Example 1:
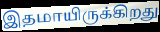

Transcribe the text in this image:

இதமாயிருக்கிறது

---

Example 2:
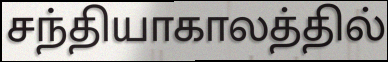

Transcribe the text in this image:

சந்தியாகாலத்தில்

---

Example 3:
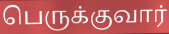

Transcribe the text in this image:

பெருக்குவார்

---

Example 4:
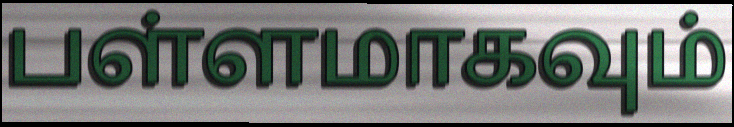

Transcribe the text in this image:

பள்ளமாகவும்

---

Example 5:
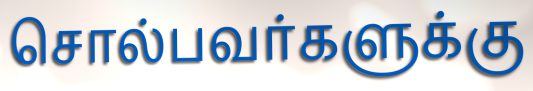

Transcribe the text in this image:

சொல்பவர்களுக்கு